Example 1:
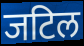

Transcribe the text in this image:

जटिल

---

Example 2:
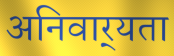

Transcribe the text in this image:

अनिवार्यता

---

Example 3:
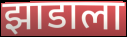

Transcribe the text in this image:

झाडाला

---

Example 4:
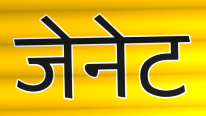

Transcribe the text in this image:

जेनेट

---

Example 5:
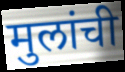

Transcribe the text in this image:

मुलांची